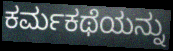
ಕರ್ಮಕಥೆಯನ್ನು